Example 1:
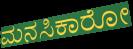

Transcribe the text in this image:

ಮನಸಿಕಾರೋ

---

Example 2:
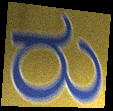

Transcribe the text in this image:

ರು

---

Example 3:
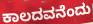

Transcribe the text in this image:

ಕಾಲದವನೆಂದು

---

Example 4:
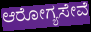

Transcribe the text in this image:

ಆರೋಗ್ಯಸೇವೆ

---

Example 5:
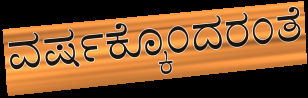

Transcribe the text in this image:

ವರ್ಷಕ್ಕೊಂದರಂತೆ